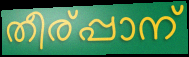
തീര്പ്പാന്